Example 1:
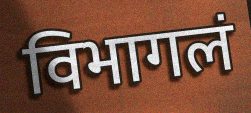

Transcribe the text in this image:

विभागलं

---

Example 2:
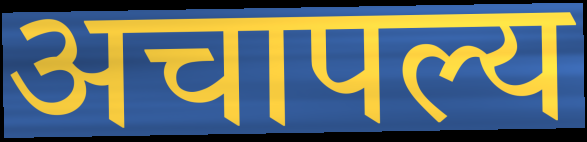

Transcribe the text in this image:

अचापल्य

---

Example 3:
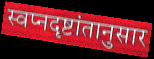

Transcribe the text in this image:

स्वप्नदृष्टांतानुसार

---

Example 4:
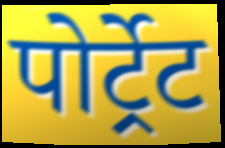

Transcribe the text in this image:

पोर्ट्रेट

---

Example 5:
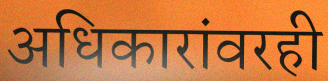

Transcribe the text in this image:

अधिकारांवरही